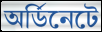
অর্ডিনেটে